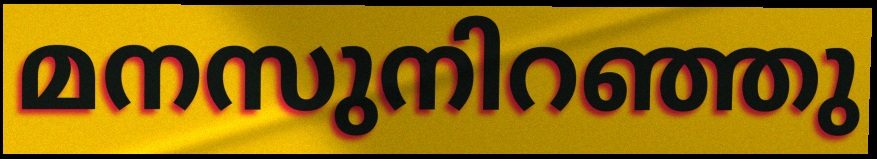
മനസുനിറഞ്ഞു